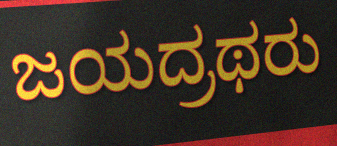
ಜಯದ್ರಥರು